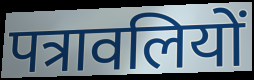
पत्रावलियों